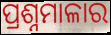
ପ୍ରଶ୍ନମାଳାର